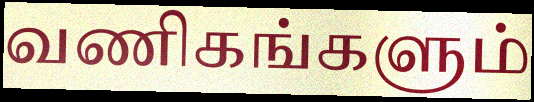
வணிகங்களும்